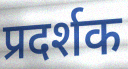
प्रदर्शक